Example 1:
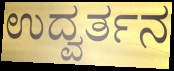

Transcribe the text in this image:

ಉದ್ವರ್ತನ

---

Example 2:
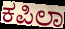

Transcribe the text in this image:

ಕಪಿಲಾ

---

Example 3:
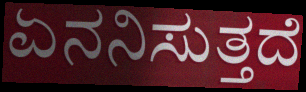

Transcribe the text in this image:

ಏನನಿಸುತ್ತದೆ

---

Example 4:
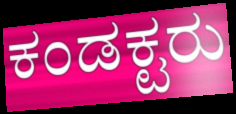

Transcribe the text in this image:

ಕಂಡಕ್ಟರು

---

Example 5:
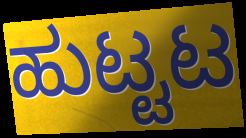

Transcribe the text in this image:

ಹುಟ್ಟಟ